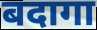
बदागा